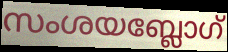
സംശയബ്ലോഗ്